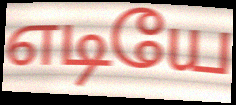
எடியே